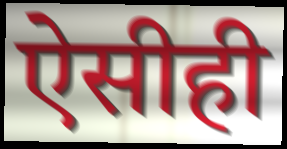
ऐसीही